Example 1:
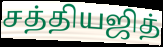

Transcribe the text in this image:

சத்தியஜித்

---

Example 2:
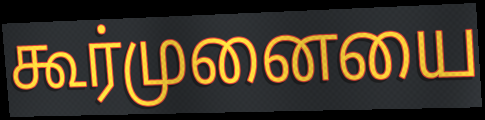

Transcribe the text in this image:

கூர்முனையை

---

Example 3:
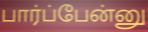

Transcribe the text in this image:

பார்ப்பேன்னு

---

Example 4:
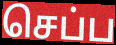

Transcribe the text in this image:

செப்ப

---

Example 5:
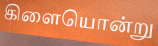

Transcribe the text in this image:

கிளையொன்று